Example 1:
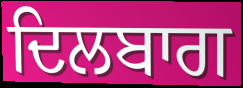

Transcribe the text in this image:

ਦਿਲਬਾਗ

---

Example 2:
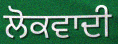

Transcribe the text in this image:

ਲੋਕਵਾਦੀ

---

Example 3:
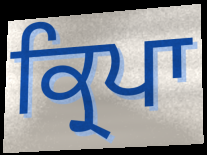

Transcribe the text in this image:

ਕ੍ਰਿਪਾ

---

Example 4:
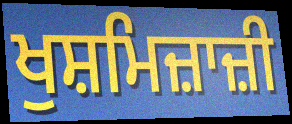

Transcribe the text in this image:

ਖੁਸ਼ਮਿਜ਼ਾਜ਼ੀ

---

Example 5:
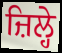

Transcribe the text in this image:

ਜ਼ਿਲ੍ਹੇ